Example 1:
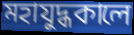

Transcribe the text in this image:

মহাযুদ্ধকালে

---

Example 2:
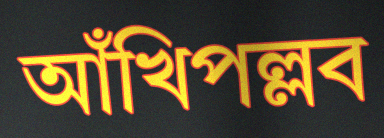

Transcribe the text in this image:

আঁখিপল্লব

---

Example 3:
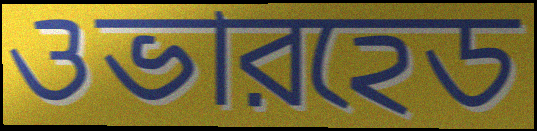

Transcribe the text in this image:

ওভারহেড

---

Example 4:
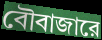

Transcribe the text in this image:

বৌবাজারে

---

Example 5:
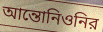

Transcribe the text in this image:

আন্তোনিওনির